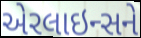
એરલાઇન્સને